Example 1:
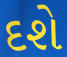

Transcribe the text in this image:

દશે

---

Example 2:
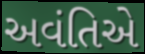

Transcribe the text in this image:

અવંતિએ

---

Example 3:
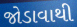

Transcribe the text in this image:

જોડાવાથી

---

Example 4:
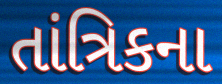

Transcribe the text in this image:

તાંત્રિકના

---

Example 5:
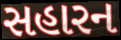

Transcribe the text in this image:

સહારન